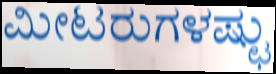
ಮೀಟರುಗಳಷ್ಟು